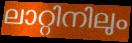
ലാറ്റിനിലും